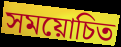
সময়োচিত